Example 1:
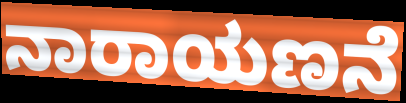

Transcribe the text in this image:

ನಾರಾಯಣನೆ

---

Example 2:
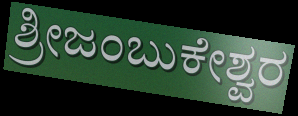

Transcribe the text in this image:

ಶ್ರೀಜಂಬುಕೇಶ್ವರ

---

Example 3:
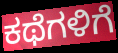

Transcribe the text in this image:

ಕಥೆಗಳಿಗೆ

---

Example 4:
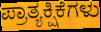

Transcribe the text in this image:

ಪ್ರಾತ್ಯಕ್ಷಿಕೆಗಳು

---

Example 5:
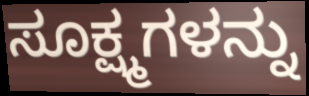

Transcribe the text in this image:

ಸೂಕ್ಷ್ಮಗಳನ್ನು